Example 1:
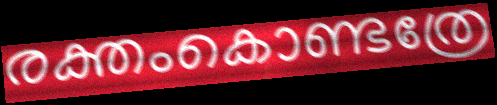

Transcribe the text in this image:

രക്തംകൊണ്ടത്രേ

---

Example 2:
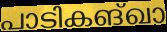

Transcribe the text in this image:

പാടികങ്ഖാ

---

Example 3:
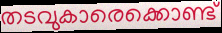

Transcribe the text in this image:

തടവുകാരെക്കൊണ്ട്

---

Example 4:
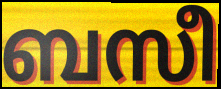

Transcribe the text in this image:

ബസീ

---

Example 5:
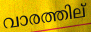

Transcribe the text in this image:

വാരത്തില്